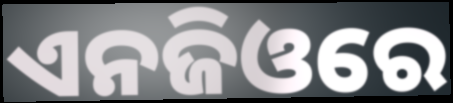
ଏନଜିଓରେ